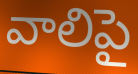
వాలిపై